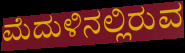
ಮೆದುಳಿನಲ್ಲಿರುವ